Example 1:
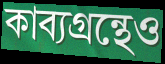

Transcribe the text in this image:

কাব্যগ্রন্থেও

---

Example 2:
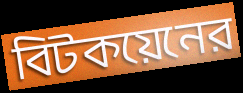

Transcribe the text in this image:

বিটকয়েনের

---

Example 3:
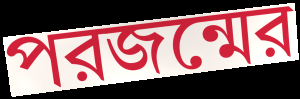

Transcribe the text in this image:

পরজন্মের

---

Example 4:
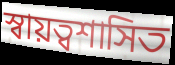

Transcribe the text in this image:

স্বায়ত্বশাসিত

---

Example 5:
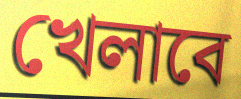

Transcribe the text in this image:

খেলাবে